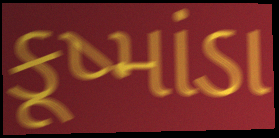
કૂષ્માંડા